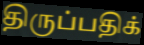
திருப்பதிக்